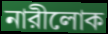
নারীলোক